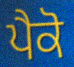
ਪੈਕੋ